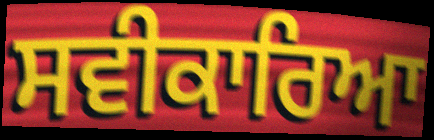
ਸਵੀਕਾਰਿਆ